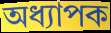
অধ্যাপক